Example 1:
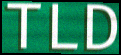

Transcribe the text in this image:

TLD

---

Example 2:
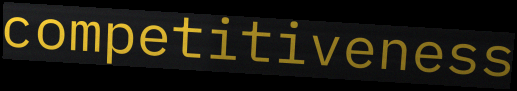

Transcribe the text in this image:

competitiveness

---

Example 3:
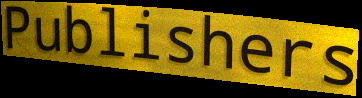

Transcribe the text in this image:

Publishers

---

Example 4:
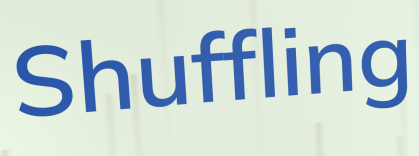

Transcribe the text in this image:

Shuffling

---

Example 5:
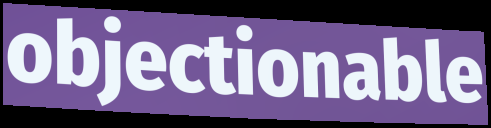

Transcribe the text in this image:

objectionable